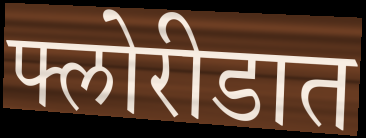
फ्लोरीडात